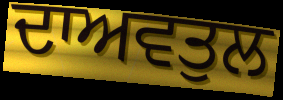
ਦਾਅਵਤੁਲ